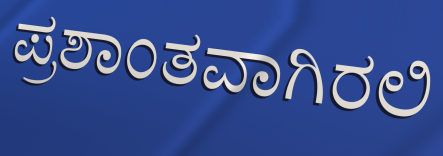
ಪ್ರಶಾಂತವಾಗಿರಲಿ